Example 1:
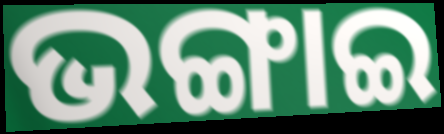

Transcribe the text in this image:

ଭଙ୍ଗାଇ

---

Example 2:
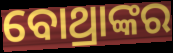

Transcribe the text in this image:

ବୋଥ୍ରାଙ୍କର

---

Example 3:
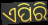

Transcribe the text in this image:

ଏପିରି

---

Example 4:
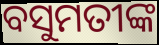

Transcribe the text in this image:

ବସୁମତୀଙ୍କ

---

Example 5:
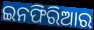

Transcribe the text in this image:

ଇନଫିରିଆର